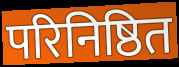
परिनिष्ठित